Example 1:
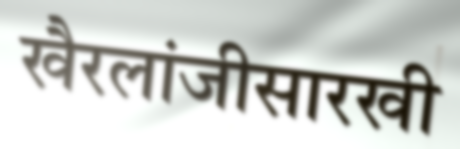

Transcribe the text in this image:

खैरलांजीसारखी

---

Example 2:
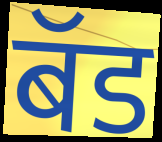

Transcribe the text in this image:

बॅड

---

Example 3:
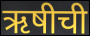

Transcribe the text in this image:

ॠषीची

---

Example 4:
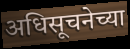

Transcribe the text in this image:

अधिसूचनेच्या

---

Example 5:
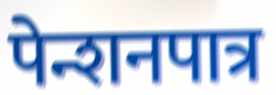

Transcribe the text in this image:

पेन्शनपात्र